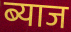
ब्याज